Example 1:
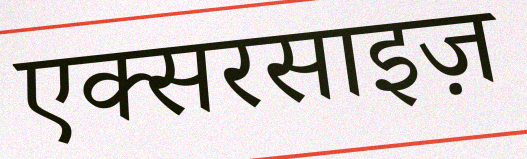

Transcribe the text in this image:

एक्सरसाइज़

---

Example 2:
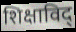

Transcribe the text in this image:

शिक्षाविद्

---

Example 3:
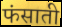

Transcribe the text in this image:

फंसाती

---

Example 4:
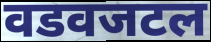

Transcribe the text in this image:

वडवजटल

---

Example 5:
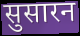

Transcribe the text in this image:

सुसारन